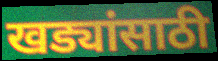
खड्यांसाठी